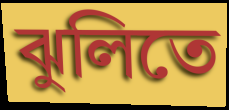
ঝুলিতে